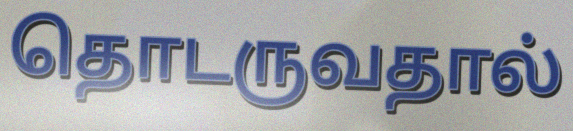
தொடருவதால்